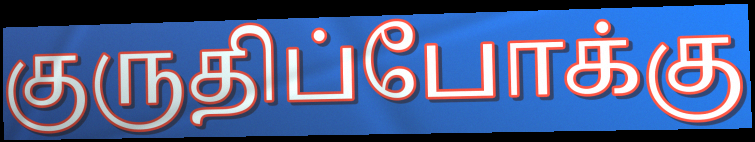
குருதிப்போக்கு